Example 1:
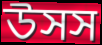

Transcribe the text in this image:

উসস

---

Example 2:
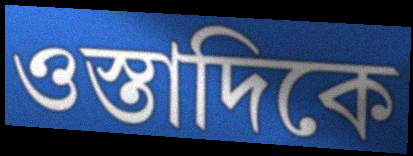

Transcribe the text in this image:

ওস্তাদিকে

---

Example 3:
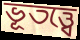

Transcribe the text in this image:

ভূতত্ত্বে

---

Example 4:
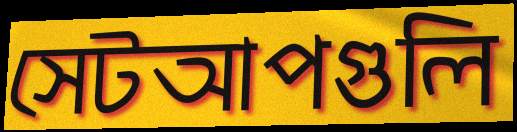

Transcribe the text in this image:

সেটআপগুলি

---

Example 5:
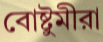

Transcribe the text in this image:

বোষ্টুমীরা